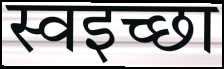
स्वइच्छा